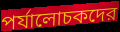
পর্যালোচকদের